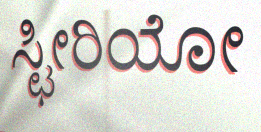
ಸ್ಟೀರಿಯೋ